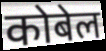
कोबेल